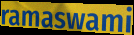
ramaswami